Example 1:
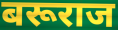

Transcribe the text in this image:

बरूराज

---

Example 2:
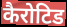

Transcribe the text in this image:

कैरोटिड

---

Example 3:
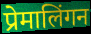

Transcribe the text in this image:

प्रेमालिंगन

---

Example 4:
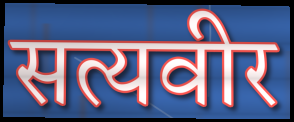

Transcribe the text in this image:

सत्यवीर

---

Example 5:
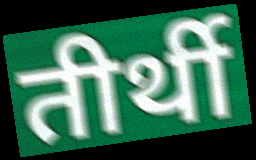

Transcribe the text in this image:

तीर्थी